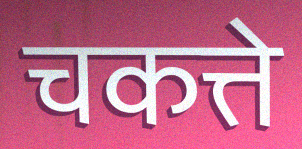
चकत्ते